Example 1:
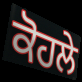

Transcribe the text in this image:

ਕੋਹਲੇ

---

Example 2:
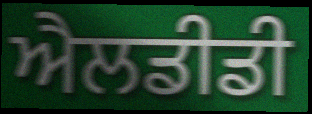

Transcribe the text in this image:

ਐਲਡੀਡੀ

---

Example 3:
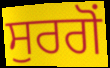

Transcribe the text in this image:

ਸੁਰਗੋਂ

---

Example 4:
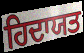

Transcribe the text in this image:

ਹਿਦਾਯਤ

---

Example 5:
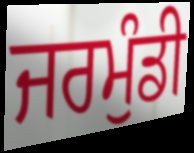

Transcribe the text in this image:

ਜਰਮੁੰਡੀ